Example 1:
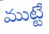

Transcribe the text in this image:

ముట్టే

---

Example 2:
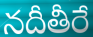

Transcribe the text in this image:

నదీతీరే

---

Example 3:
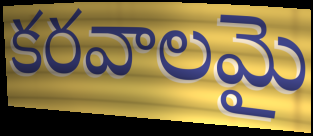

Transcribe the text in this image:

కరవాలమై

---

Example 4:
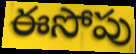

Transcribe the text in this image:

ఈసోపు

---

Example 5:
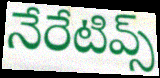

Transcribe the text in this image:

నేరేటివ్స్